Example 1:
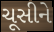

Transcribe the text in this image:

ચૂસીને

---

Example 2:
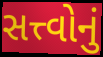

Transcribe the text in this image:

સત્ત્વોનું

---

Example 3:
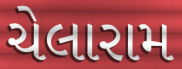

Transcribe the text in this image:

ચેલારામ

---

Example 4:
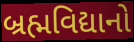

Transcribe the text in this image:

બ્રહ્મવિદ્યાનો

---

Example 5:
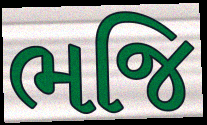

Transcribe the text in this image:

ભજિ